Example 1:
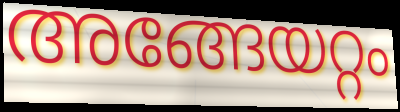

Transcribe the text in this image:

അങ്ങേയറ്റം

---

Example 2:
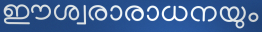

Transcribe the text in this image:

ഈശ്വരാരാധനയും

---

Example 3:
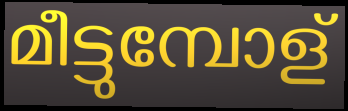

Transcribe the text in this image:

മീട്ടുമ്പോള്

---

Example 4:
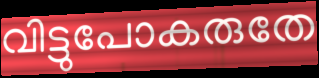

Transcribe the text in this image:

വിട്ടുപോകരുതേ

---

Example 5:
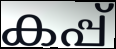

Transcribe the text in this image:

കപ്പ്